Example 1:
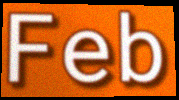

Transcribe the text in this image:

Feb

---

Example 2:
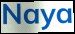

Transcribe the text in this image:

Naya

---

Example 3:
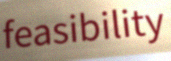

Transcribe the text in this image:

feasibility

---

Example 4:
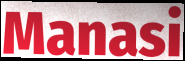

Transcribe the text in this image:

Manasi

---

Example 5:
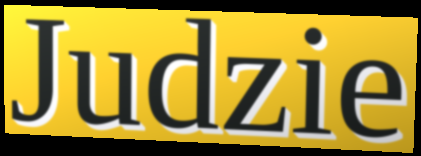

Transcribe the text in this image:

Judzie